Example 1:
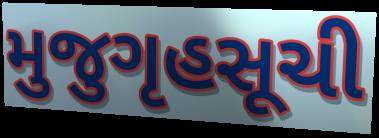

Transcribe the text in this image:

મુજુગૃહસૂચી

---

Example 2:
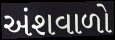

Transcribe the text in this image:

અંશવાળો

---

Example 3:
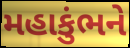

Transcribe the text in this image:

મહાકુંભને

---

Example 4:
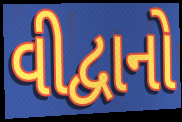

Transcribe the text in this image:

વીદ્વાનો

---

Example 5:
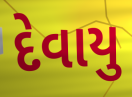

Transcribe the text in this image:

દેવાયુ